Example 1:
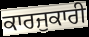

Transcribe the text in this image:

ਕਾਰਜੁਕਾਰੀ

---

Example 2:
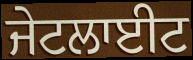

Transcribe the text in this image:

ਜੇਟਲਾਈਟ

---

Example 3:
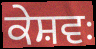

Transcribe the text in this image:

ਕੇਸ਼ਵਃ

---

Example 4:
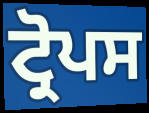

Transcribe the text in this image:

ਟ੍ਰੋਪਸ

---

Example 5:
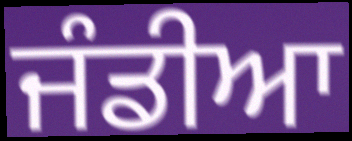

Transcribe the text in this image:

ਜੰਡੀਆ